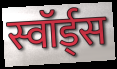
स्‍वॉर्ड्स